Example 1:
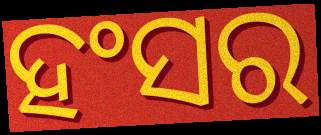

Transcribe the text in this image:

ହଂସର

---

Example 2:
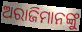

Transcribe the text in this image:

ଅରାଜିମାନଙ୍କୁ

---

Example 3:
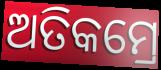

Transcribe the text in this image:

ଅତିକମ୍ରେ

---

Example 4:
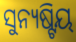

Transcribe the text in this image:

ସୁନ୍ୟଷ୍ଟିୟ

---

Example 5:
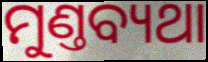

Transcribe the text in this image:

ମୁଣ୍ତବ୍ୟଥା